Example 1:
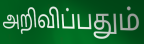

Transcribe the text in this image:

அறிவிப்பதும்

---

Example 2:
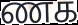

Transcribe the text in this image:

ணக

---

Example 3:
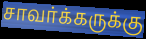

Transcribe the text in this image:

சாவர்க்கருக்கு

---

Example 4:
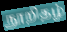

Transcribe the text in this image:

நூறிதழ்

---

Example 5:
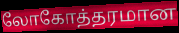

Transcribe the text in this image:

லோகோத்தரமான